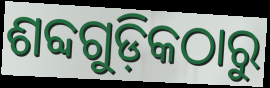
ଶବ୍ଦଗୁଡ଼ିକଠାରୁ